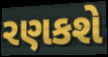
રણકશે